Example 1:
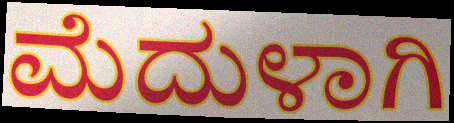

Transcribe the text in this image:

ಮೆದುಳಾಗಿ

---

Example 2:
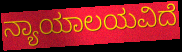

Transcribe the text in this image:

ನ್ಯಾಯಾಲಯವಿದೆ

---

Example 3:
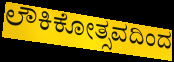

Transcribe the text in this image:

ಲೌಕಿಕೋತ್ಸವದಿಂದ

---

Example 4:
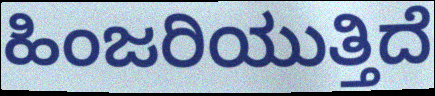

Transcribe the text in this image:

ಹಿಂಜರಿಯುತ್ತಿದೆ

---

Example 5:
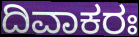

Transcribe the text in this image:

ದಿವಾಕರಃ